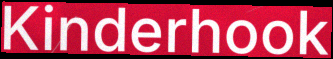
Kinderhook